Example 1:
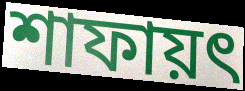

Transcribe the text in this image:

শাফায়ৎ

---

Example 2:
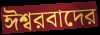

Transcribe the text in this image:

ঈশ্বরবাদের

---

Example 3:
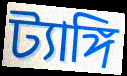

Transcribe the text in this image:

ট্যাঙ্গি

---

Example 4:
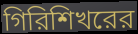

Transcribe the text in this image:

গিরিশিখরের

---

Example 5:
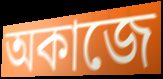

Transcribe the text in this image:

অকাজে